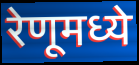
रेणूमध्ये